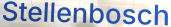
Stellenbosch